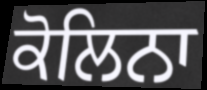
ਕੋਲਿਨਾ